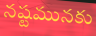
నష్టమునకు